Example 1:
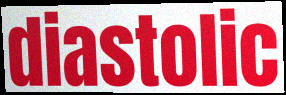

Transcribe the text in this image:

diastolic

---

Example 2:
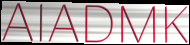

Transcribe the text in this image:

AIADMK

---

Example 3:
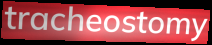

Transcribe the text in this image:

tracheostomy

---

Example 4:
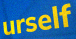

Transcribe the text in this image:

urself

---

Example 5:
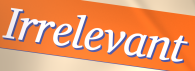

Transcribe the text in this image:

Irrelevant